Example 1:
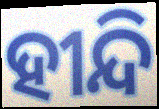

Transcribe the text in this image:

ହୀନ୍ଦି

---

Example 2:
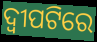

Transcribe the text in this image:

ଦ୍ୱୀପଟିରେ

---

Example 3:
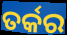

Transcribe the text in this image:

ତର୍କର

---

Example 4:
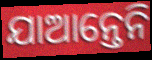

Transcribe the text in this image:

ଯାଆନ୍ତେନି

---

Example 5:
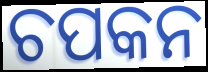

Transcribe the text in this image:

ଚପକନ